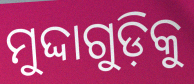
ମୁଦ୍ଦାଗୁଡ଼ିକୁ